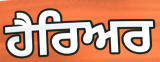
ਹੈਰਿਅਰ